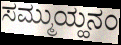
ಸಮ್ಮುಯ್ಹನಂ